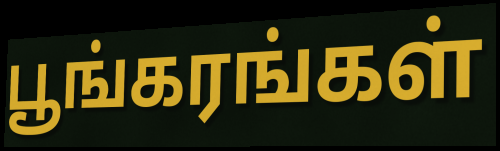
பூங்கரங்கள்